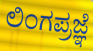
ಲಿಂಗಪ್ರಜ್ಞೆ